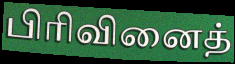
பிரிவினைத்